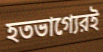
হতভাগ্যেরই